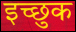
इच्छुक